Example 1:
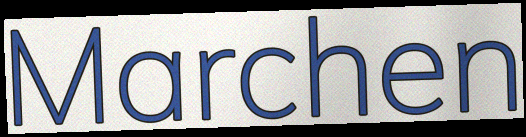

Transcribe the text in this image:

Marchen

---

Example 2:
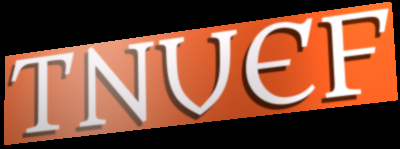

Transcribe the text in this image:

TNUEF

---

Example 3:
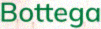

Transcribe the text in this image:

Bottega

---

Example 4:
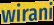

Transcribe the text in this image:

wirani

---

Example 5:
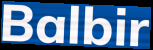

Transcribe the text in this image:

Balbir